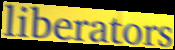
liberators